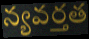
న్యవర్తత